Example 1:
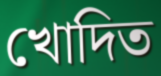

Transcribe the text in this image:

খোদিত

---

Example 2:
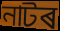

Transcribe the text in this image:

নাটৰ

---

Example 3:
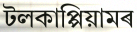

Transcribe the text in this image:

টলকাপ্পিয়ামৰ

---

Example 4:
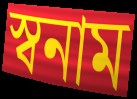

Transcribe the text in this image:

স্বনাম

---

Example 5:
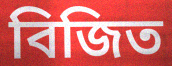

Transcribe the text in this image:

বিজিত